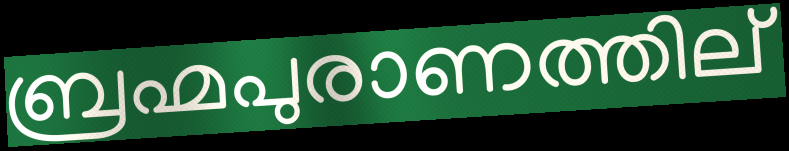
ബ്രഹ്മപുരാണത്തില്